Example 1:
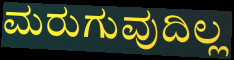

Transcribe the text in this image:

ಮರುಗುವುದಿಲ್ಲ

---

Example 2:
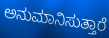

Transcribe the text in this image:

ಅನುಮಾನಿಸುತ್ತಾರೆ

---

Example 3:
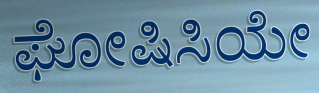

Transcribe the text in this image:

ಘೋಷಿಸಿಯೇ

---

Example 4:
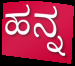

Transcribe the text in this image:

ಹನ್ನ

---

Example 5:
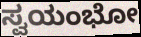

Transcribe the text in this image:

ಸ್ವಯಂಭೋ